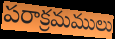
పరాక్రమములు